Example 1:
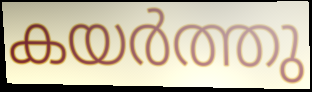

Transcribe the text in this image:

കയർത്തു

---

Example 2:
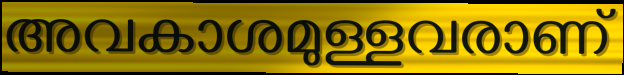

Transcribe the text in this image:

അവകാശമുള്ളവരാണ്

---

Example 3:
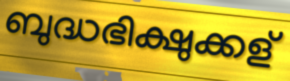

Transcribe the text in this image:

ബുദ്ധഭിക്ഷുക്കള്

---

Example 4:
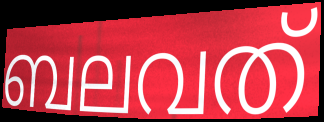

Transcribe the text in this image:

ബലവത്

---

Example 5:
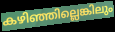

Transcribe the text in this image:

കഴിഞ്ഞില്ലെങ്കിലും